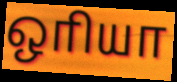
ஒரியா